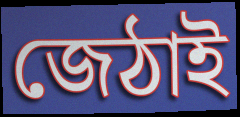
জেঠাই